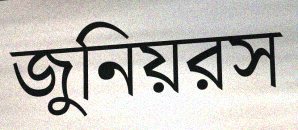
জুনিয়রস